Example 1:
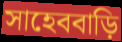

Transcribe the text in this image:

সাহেববাড়ি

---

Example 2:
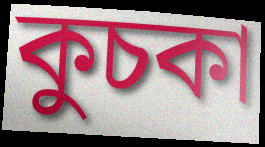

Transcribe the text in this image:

কুচকা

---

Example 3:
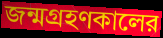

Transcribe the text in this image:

জন্মগ্রহণকালের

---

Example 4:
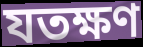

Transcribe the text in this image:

যতক্ষণ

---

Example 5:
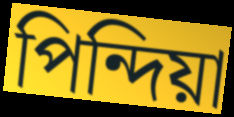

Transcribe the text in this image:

পিন্দিয়া